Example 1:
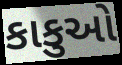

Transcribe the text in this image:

કાકુઓ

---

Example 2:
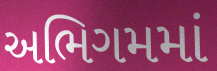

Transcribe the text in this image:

અભિગમમાં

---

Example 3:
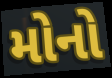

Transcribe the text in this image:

મોનો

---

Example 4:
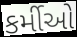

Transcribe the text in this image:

કર્મીઓ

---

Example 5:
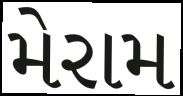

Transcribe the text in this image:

મેરામ